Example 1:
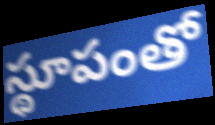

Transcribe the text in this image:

స్థూపంతో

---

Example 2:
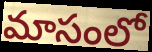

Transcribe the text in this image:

మాసంలో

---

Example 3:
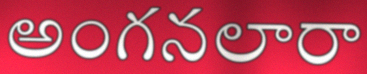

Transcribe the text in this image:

అంగనలారా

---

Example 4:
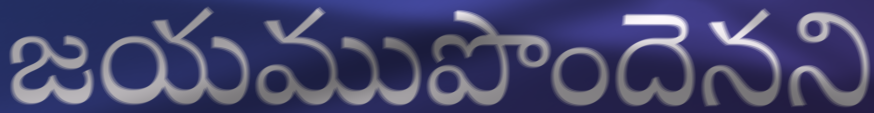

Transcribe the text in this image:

జయముపొందెనని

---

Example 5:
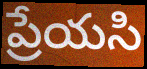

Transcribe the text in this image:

ప్రేయసి